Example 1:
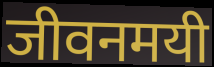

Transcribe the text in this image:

जीवनमयी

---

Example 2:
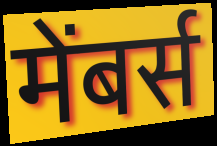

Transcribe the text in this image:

मेंबर्स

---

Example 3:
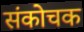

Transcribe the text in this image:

संकोचक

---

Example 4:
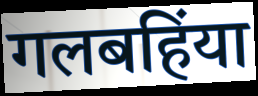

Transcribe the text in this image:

गलबहिंया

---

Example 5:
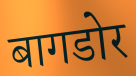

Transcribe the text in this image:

बागडोर